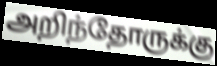
அறிந்தோருக்கு